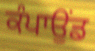
ਕੰਪਾਉਂਡ